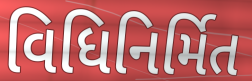
વિધિનિર્મિત